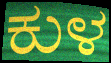
ಕುಳ